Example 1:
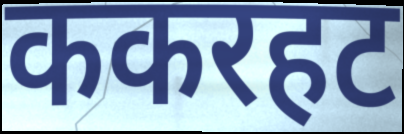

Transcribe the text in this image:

ककरहट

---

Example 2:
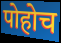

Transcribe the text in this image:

पोहोच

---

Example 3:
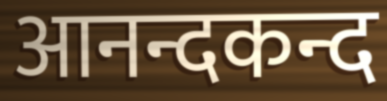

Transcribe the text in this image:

आनन्दकन्द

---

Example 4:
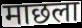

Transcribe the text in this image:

माछला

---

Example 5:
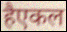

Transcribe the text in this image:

हैएकल